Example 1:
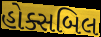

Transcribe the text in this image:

હોક્સબિલ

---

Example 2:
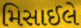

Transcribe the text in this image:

મિસાઈલે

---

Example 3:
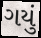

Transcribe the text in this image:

ગયું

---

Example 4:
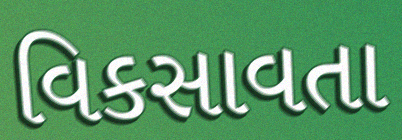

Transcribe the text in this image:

વિકસાવતા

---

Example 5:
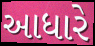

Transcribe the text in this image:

આધારે